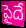
పైదే